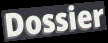
Dossier